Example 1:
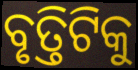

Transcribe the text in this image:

ବୃତ୍ତିଟିକୁ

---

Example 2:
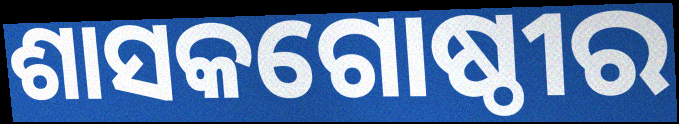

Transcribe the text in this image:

ଶାସକଗୋଷ୍ଠୀର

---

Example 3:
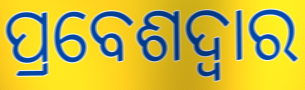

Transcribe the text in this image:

ପ୍ରବେଶଦ୍ଵାର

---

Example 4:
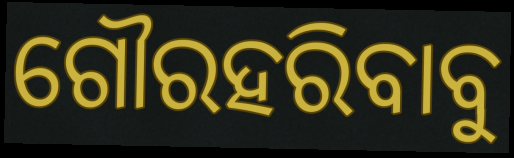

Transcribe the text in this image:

ଗୌରହରିବାବୁ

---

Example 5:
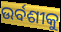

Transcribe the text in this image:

ଉର୍ବଶୀକୁ